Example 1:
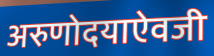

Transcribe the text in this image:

अरुणोदयाऐवजी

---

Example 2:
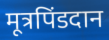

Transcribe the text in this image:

मूत्रपिंडदान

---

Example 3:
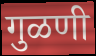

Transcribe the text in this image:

गुळणी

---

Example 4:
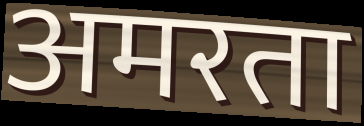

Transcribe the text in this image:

अमरता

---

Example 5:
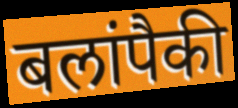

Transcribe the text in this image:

बलांपैकी